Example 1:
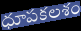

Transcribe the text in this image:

ధూపకలశం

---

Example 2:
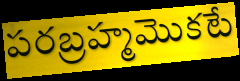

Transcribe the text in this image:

పరబ్రహ్మమొకటే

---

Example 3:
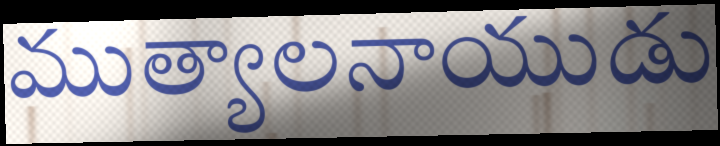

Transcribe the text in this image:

ముత్యాలనాయుడు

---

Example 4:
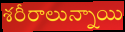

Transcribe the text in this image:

శరీరాలున్నాయి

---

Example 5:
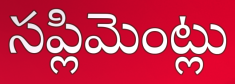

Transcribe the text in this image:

సప్లిమెంట్లు